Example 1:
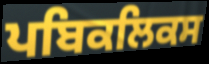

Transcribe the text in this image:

ਪਬਿਕਲਿਕਸ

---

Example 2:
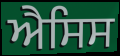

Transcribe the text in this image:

ਐਸਿਸ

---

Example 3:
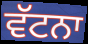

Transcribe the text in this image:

ਵੱਟਨਾ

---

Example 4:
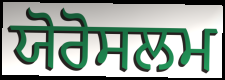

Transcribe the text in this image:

ਯੋਰੋਸਲਮ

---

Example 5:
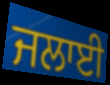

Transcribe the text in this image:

ਜਲਾਈ